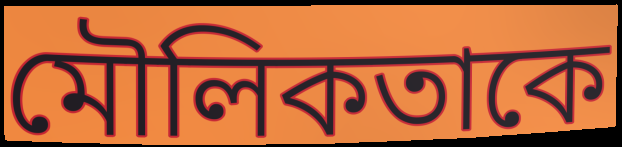
মৌলিকতাকে